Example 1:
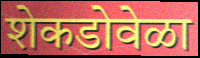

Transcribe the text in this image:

शेकडोवेळा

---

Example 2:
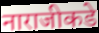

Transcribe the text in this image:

नाराजीकडे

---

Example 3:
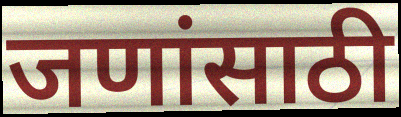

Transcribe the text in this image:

जणांसाठी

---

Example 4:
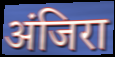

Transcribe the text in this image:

अंजिरा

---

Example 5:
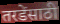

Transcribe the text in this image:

तरडेंसाठी